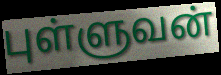
புள்ளுவன்